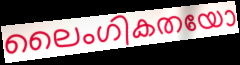
ലൈംഗികതയോ